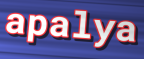
apalya